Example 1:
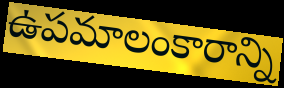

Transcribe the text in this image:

ఉపమాలంకారాన్ని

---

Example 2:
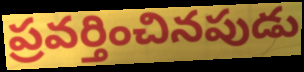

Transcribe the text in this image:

ప్రవర్తించినపుడు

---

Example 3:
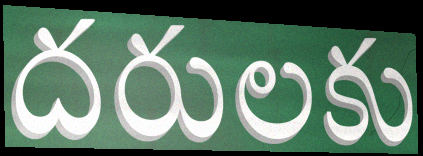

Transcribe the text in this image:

దరులకు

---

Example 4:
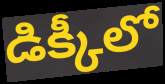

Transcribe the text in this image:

డిక్కీలో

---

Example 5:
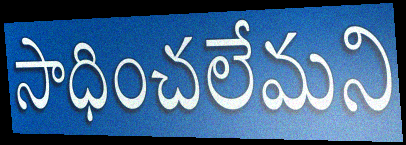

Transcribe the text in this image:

సాధించలేమని